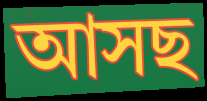
আসছ